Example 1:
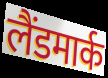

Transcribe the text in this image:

लैंडमार्क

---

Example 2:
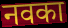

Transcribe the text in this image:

नवका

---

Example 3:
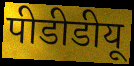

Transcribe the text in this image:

पीडीडीयू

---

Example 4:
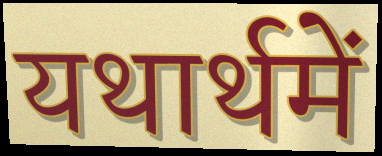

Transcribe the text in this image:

यथार्थमें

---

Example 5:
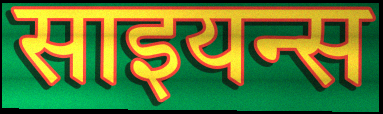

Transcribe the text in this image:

साइयन्स